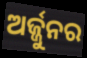
ଅର୍ଜ୍ଜୁନର